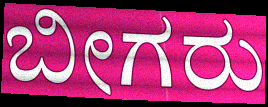
ಬೀಗರು